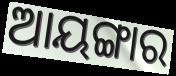
ଆୟଙ୍ଗାର